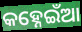
କହ୍ନେଇଁଆ